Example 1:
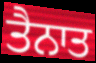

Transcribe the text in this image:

ਤੈਨਾਤ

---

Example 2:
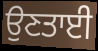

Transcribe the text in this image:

ਉਣਤਾਈ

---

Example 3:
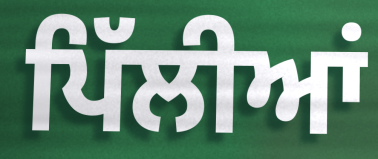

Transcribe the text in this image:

ਪਿੱਲੀਆਂ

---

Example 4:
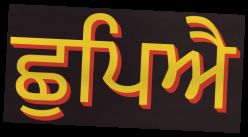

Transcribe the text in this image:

ਛੁਪਿਐ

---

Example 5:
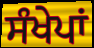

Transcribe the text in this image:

ਸੰਖੇਪਾਂ